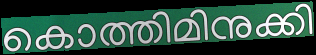
കൊത്തിമിനുക്കി